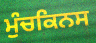
ਮੁੰਚਕਿਨਸ